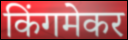
किंगमेकर